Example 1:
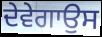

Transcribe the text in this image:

ਦੇਵੇਗਾਉਸ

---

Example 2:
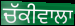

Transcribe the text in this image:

ਚੱਕੀਵਾਲਾ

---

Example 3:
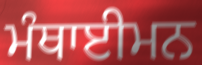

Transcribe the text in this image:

ਮੰਥਾਈਮਨ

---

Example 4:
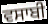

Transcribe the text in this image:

ਵਸਾਬੀ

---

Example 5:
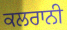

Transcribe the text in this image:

ਕਲਰਾਨੀ